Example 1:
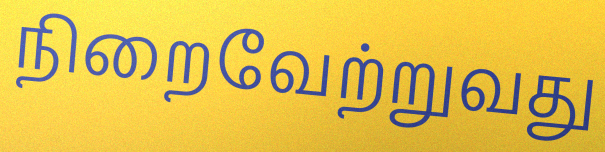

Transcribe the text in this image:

நிறைவேற்றுவது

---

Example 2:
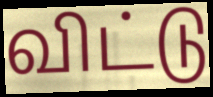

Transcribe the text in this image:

விட்டு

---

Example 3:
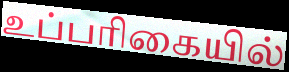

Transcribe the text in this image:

உப்பரிகையில்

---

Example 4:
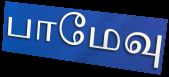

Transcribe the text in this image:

பாமேவு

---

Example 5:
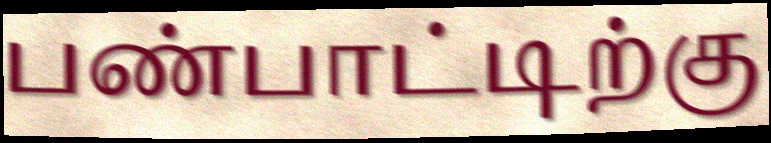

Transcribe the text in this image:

பண்பாட்டிற்கு